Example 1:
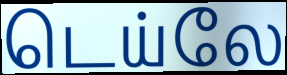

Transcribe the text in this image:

டெய்லே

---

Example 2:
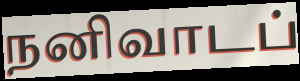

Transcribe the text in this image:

நனிவாடப்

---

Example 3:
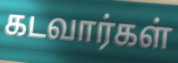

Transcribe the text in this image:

கடவார்கள்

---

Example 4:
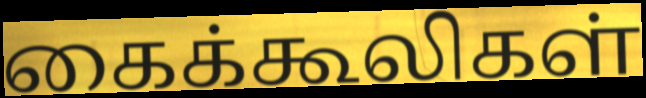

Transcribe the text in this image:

கைக்கூலிகள்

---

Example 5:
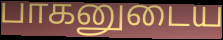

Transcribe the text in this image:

பாகனுடைய